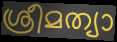
ശ്രീമത്യാ